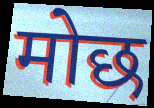
मोछ